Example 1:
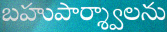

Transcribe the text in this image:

బహుపార్శ్వాలను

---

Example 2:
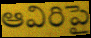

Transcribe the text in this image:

ఆవిరిపై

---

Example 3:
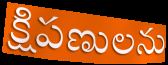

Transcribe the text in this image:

క్షిపణులను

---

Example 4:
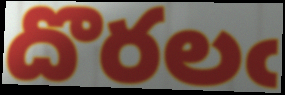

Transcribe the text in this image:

దొరలఁ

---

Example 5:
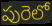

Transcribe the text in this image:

పురెలో